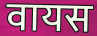
वायस